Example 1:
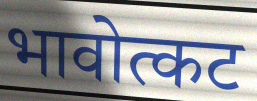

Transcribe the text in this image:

भावोत्कट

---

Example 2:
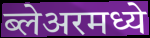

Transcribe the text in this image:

ब्लेअरमध्ये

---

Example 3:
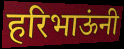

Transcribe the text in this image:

हरिभाऊंनी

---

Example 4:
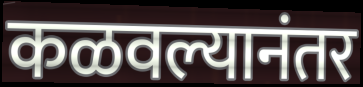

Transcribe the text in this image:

कळवल्यानंतर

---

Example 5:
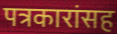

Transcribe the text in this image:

पत्रकारांसह